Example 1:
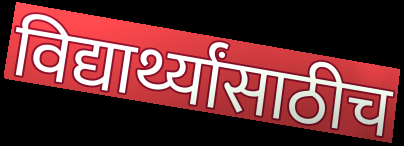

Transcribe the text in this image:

विद्यार्थ्यांसाठीच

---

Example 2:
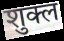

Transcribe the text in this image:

शुक्‍ल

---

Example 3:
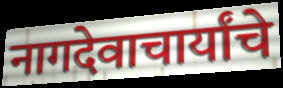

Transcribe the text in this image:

नागदेवाचार्यांचे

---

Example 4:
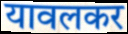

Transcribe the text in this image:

यावलकर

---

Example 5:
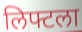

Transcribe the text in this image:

लिफ्टला